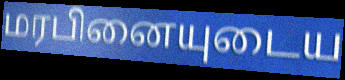
மரபினையுடைய